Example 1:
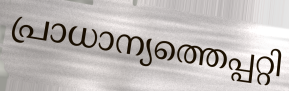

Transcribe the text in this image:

പ്രാധാന്യത്തെപ്പറ്റി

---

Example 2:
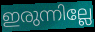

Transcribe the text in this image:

ഇരുന്നില്ലേ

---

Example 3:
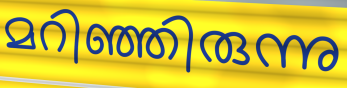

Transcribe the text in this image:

മറിഞ്ഞിരുന്നു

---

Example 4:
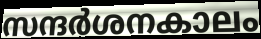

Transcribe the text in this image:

സന്ദർശനകാലം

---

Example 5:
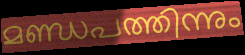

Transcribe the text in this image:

മണ്ഡപത്തിന്നും